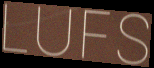
LUFS